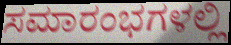
ಸಮಾರಂಭಗಳಲ್ಲಿ